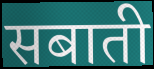
सबाती